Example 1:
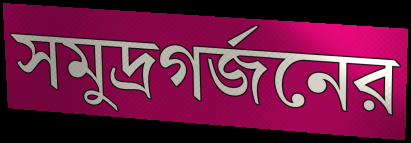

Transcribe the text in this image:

সমুদ্রগর্জনের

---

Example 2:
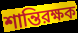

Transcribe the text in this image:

শান্তিরক্ষক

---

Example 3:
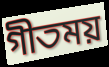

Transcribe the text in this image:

গীতময়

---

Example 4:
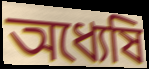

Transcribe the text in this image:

অধ্যেষি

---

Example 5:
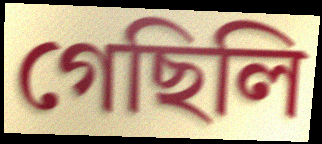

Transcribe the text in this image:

গেছিলি